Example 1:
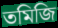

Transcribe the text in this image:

তমিজি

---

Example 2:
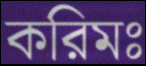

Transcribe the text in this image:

করিমঃ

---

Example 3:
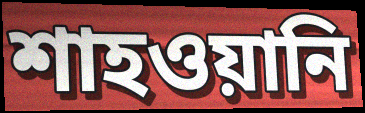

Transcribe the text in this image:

শাহওয়ানি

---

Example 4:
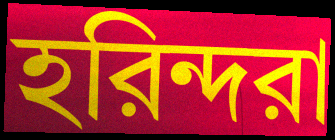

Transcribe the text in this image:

হরিন্দরা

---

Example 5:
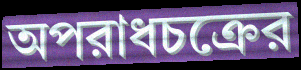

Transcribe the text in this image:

অপরাধচক্রের